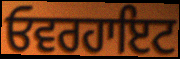
ਓਵਰਹਾਇਟ